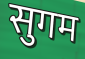
सुगम